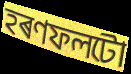
হৰণফলটো